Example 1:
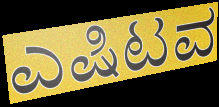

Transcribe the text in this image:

ಎಷಿಟವ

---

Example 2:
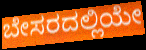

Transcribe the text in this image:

ಬೇಸರದಲ್ಲಿಯೇ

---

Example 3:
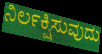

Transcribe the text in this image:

ನಿರ್ಲಕ್ಷಿಸುವುದು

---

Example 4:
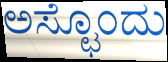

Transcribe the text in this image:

ಅಸ್ಟೊಂದು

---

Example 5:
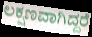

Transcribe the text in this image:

ಲಕ್ಷಣವಾಗಿದ್ದರೆ